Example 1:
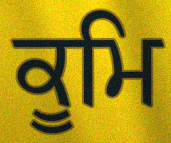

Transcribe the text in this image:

ਕੂਮਿ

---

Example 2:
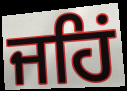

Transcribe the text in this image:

ਜਹਿਂ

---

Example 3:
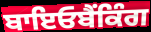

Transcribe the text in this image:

ਬਾਇਓਬੈਂਕਿੰਗ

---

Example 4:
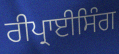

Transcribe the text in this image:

ਰੀਪ੍ਰਾਈਸਿੰਗ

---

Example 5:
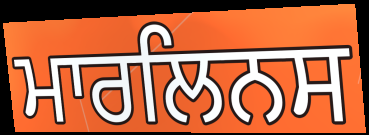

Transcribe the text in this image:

ਮਾਰਲਿਨਸ